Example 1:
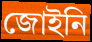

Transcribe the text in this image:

জোইনি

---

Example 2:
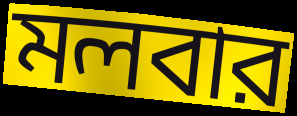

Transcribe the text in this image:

মলবার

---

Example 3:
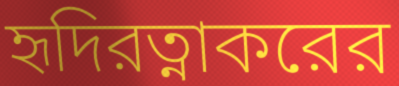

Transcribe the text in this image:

হৃদিরত্নাকরের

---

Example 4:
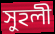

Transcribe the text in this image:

সুহলী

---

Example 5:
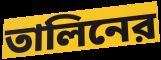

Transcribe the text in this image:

তালিনের